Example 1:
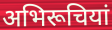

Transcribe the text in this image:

अभिरूचियां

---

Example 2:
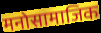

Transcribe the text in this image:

मनोसामाजिक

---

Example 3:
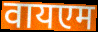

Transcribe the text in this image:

वायएम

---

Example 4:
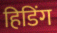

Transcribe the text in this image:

हिडिंग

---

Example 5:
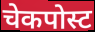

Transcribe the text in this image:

चेकपोस्ट